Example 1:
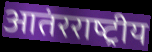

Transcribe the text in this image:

आतंरराष्ट्रीय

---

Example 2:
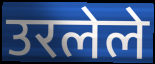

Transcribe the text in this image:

उरलेले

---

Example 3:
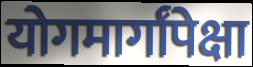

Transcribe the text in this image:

योगमार्गांपेक्षा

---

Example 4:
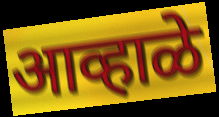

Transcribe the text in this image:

आव्हाळे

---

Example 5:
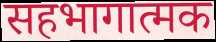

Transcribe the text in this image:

सहभागात्मक